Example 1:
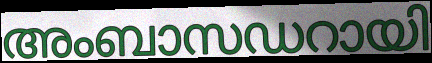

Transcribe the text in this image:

അംബാസഡറായി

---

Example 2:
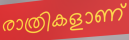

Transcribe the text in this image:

രാത്രികളാണ്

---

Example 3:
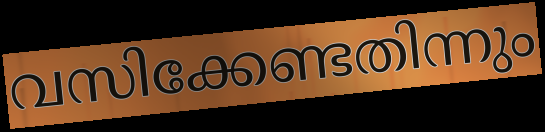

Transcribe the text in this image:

വസിക്കേണ്ടതിന്നും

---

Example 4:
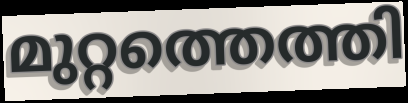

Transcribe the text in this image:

മുറ്റത്തെത്തി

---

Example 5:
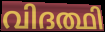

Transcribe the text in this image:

വിദത്ഥി